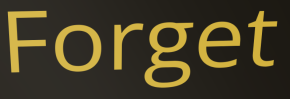
Forget